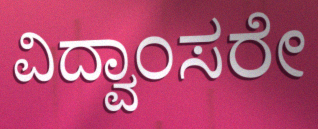
ವಿದ್ವಾಂಸರೇ